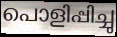
പൊളിപ്പിച്ചു